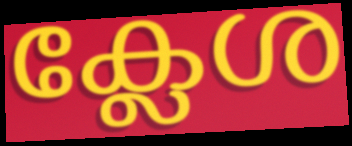
ക്ലേശ